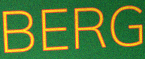
BERG